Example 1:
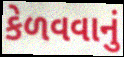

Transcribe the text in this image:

કેળવવાનું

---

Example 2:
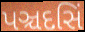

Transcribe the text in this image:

પઞ્ચદસિં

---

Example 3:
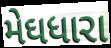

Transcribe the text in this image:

મેઘધારા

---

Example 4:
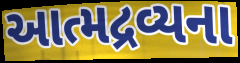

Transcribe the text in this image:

આત્મદ્રવ્યના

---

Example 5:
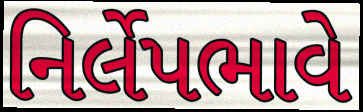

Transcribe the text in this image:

નિર્લેપભાવે